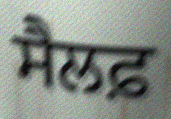
ਸੈਲਫ਼